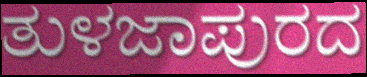
ತುಳಜಾಪುರದ